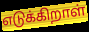
எடுக்கிறாள்